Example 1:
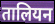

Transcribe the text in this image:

तालियन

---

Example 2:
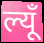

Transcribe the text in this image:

ल्यूँ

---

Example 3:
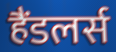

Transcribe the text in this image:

हैंडलर्स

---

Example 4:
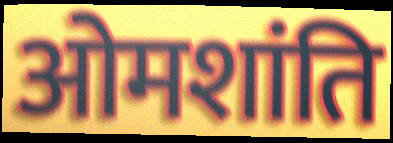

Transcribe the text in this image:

ओमशांति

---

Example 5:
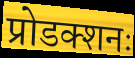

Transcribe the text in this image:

प्रोडक्शनः